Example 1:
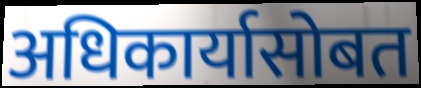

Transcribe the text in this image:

अधिकार्यासोबत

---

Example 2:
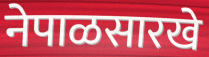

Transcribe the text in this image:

नेपाळसारखे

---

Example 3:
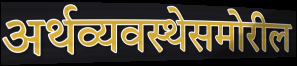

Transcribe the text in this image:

अर्थव्यवस्थेसमोरील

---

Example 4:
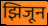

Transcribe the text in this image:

झिजून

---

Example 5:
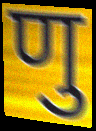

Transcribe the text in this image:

णु